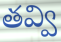
తవ్వి